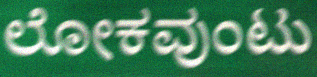
ಲೋಕವುಂಟು